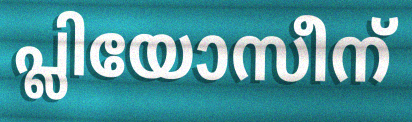
പ്ലിയോസീന്